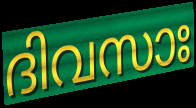
ദിവസാഃ